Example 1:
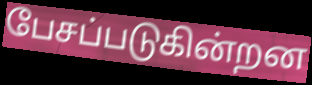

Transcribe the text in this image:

பேசப்படுகின்றன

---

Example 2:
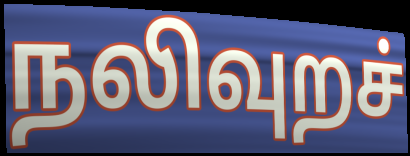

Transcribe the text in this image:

நலிவுறச்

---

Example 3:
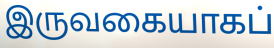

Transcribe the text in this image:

இருவகையாகப்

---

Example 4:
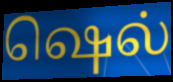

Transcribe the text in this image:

ஷெல்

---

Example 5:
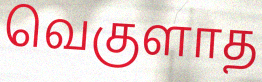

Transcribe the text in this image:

வெகுளாத